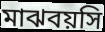
মাঝবয়সি